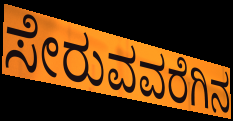
ಸೇರುವವರೆಗಿನ